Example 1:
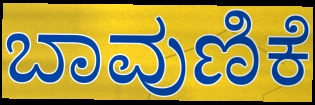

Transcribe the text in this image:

ಬಾವುಣಿಕೆ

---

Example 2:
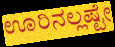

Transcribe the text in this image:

ಊರಿನಲ್ಲಷ್ಟೇ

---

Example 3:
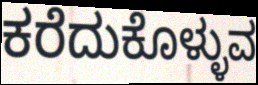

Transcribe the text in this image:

ಕರೆದುಕೊಳ್ಳುವ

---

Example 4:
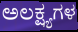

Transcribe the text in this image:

ಅಲಕ್ಷ್ಯಗಳ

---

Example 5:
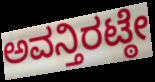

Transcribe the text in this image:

ಅವನ್ತಿರಟ್ಠೇ